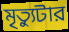
মৃত্যুটার